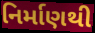
નિર્માણથી